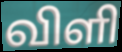
விளி